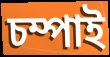
চম্পাই